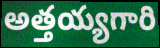
అత్తయ్యగారి